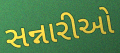
સન્નારીઓ